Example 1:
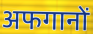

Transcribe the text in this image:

अफगानों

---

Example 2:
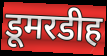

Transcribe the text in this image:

डूमरडीह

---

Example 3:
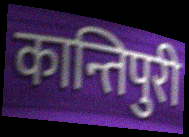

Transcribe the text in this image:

कान्तिपुरी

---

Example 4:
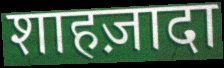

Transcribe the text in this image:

शाहज़ादा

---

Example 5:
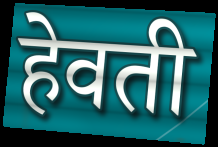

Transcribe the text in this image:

हेवती